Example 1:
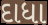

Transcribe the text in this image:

દાધા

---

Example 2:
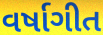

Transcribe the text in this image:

વર્ષાગીત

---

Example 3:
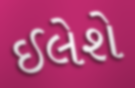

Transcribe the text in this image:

ઈલેશે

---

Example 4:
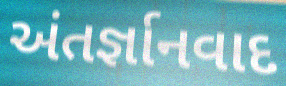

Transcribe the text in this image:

અંતર્જ્ઞાનવાદ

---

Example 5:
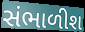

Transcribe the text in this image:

સંભાળીશ